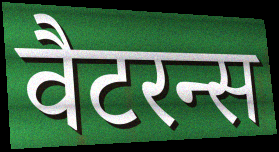
वैटरन्स